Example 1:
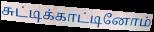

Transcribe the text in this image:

சுட்டிக்காட்டினோம்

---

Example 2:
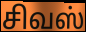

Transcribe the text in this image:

சிவஸ்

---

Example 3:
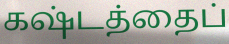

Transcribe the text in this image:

கஷ்டத்தைப்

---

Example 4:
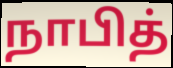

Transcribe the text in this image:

நாபித்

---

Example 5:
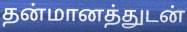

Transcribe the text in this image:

தன்மானத்துடன்